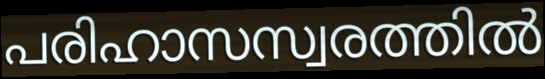
പരിഹാസസ്വരത്തിൽ